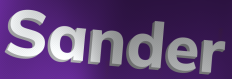
Sander